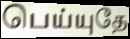
பெய்யுதே